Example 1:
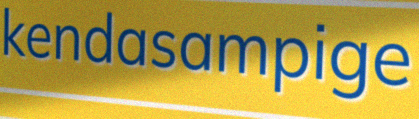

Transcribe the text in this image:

kendasampige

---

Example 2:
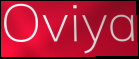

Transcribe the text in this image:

Oviya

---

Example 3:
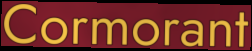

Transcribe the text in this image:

Cormorant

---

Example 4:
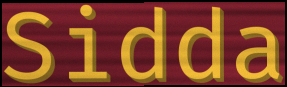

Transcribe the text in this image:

Sidda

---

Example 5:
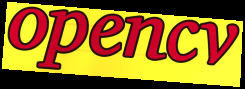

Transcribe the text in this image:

opencv